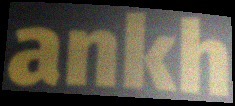
ankh